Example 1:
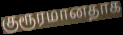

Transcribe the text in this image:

குரூரமானதாக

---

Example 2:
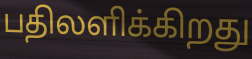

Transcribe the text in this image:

பதிலளிக்கிறது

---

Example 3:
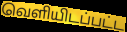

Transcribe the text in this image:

வெளியிடப்பட்ட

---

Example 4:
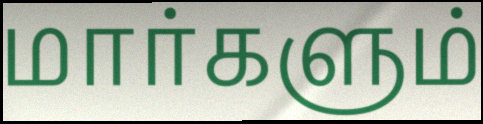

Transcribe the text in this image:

மார்களும்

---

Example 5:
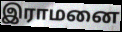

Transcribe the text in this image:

இராமனை